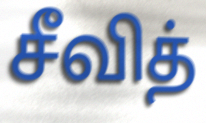
சீவித்